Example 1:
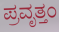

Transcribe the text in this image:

ಪ್ರವೃತ್ತಂ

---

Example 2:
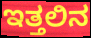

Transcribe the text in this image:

ಇತ್ತಲಿನ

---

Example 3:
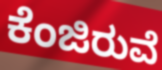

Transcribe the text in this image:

ಕೆಂಜಿರುವೆ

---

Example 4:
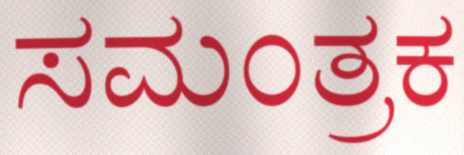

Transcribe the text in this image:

ಸಮಂತ್ರಕ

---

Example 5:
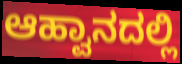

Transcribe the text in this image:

ಆಹ್ವಾನದಲ್ಲಿ